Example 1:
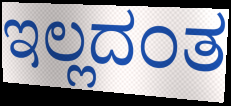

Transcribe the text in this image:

ಇಲ್ಲದಂತ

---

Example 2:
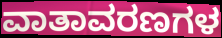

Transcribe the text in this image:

ವಾತಾವರಣಗಳ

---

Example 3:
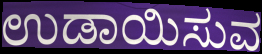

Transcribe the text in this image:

ಉಡಾಯಿಸುವ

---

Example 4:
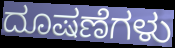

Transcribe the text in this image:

ದೂಷಣೆಗಳು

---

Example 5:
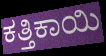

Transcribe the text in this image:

ಕತ್ತಿಕಾಯಿ